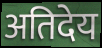
अतिदेय